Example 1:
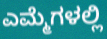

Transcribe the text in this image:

ಎಮ್ಮೆಗಳಲ್ಲಿ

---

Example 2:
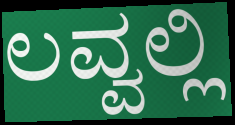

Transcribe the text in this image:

ಲವ್ವಲ್ಲಿ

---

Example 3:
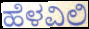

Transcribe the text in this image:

ಹೆಳವಿಲಿ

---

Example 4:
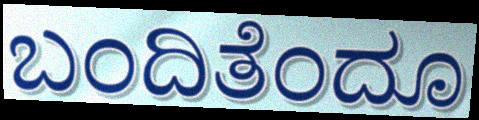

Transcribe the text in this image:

ಬಂದಿತೆಂದೂ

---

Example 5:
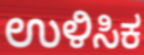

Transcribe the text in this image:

ಉಳಿಸಿಕ